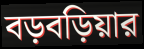
বড়বড়িয়ার